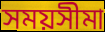
সময়সীমা